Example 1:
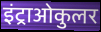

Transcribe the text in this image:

इंट्राओकुलर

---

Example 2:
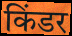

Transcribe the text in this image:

किंडर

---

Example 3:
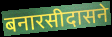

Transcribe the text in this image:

बनारसीदासने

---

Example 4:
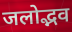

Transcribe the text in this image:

जलोद्भव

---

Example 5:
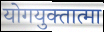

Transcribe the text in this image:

योगयुक्तात्मा